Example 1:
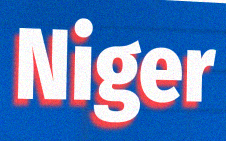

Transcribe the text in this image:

Niger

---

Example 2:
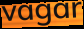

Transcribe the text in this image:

vagar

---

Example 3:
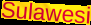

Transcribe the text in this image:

Sulawesi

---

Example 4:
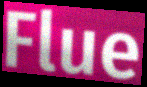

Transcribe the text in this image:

Flue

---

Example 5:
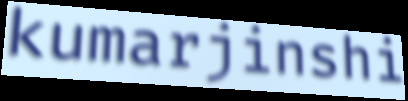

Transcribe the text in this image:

kumarjinshi